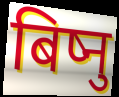
बिष्नु